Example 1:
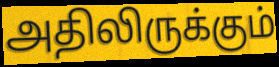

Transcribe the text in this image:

அதிலிருக்கும்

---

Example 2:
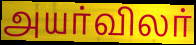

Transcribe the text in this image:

அயர்விலர்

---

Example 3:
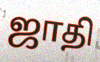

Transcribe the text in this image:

ஜாதி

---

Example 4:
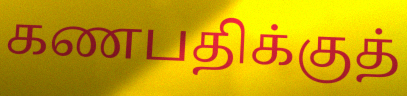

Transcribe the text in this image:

கணபதிக்குத்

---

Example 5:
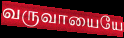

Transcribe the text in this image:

வருவாயையே